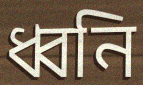
ধ্বনি